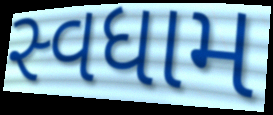
સ્વધામ